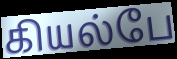
கியல்பே